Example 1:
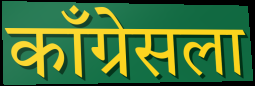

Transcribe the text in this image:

काँग्रेसला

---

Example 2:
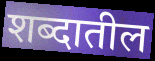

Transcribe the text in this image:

शब्दातील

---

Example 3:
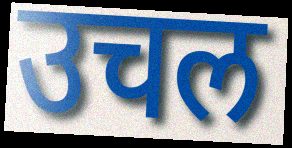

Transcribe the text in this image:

उचल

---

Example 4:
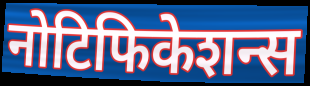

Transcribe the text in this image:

नोटिफिकेशन्स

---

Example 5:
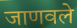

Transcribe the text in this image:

जाणवले